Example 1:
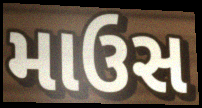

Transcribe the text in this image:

માઉસ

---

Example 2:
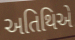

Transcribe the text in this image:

અતિથિએ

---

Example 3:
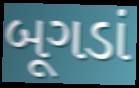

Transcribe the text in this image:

બૂગડાં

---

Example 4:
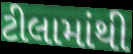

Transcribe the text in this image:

ટીલામાંથી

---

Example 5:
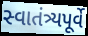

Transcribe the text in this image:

સ્વાતંત્ર્યપૂર્વે